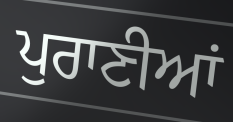
ਪੁਰਾਣੀਆਂ